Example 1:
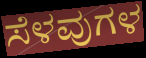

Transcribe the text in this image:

ಸೆಳವುಗಳ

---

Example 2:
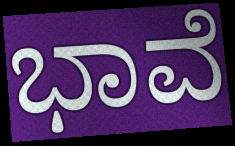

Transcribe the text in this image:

ಭಾವೆ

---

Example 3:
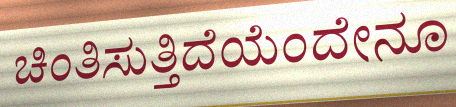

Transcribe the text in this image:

ಚಿಂತಿಸುತ್ತಿದೆಯೆಂದೇನೂ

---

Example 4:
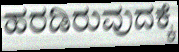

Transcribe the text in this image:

ಹರಡಿರುವುದಕ್ಕೆ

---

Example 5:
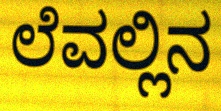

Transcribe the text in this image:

ಲೆವಲ್ಲಿನ